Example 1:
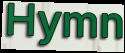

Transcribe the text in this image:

Hymn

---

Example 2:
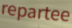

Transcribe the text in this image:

repartee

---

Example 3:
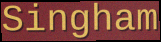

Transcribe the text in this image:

Singham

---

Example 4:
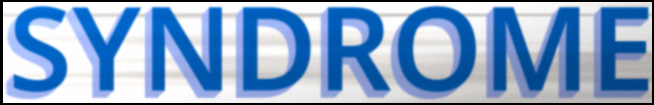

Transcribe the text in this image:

SYNDROME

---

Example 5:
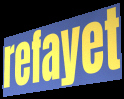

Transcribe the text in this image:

refayet